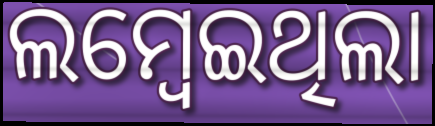
ଲମ୍ବେଇଥିଲା